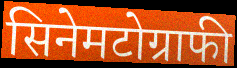
सिनेमटोग्राफी